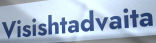
Visishtadvaita